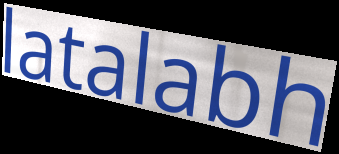
latalabh